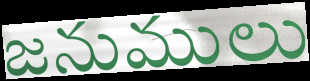
జనుములు